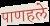
पाणहले